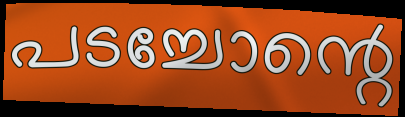
പടച്ചോന്റെ